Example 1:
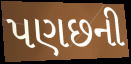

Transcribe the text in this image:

પણછની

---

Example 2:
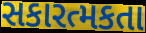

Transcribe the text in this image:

સકારત્મકતા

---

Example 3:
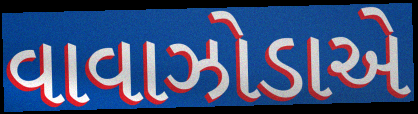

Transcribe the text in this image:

વાવાઝોડાએ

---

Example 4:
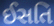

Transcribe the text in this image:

ઈસતિ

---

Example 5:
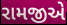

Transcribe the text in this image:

રામજીએ